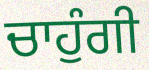
ਚਾਹੁੰਗੀ